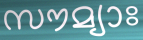
സൗമ്യാഃ